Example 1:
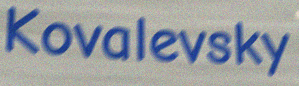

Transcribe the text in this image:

Kovalevsky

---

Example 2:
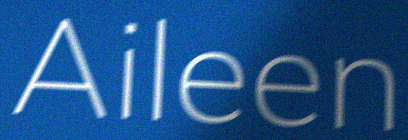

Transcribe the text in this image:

Aileen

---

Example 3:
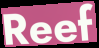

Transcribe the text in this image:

Reef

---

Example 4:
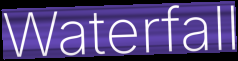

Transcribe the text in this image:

Waterfall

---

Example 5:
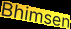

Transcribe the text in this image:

Bhimsen